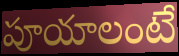
పూయాలంటే